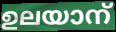
ഉലയാന്